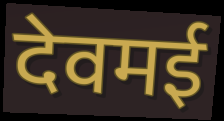
देवमई